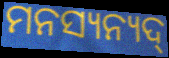
ମନସ୍ୟନ୍ୟଦ୍